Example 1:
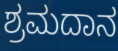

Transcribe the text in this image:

ಶ್ರಮದಾನ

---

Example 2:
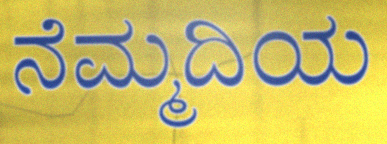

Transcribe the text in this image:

ನೆಮ್ಮದಿಯ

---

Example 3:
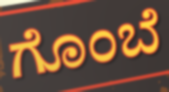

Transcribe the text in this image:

ಗೊಂಬೆ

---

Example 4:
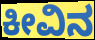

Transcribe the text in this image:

ಕೀವಿನ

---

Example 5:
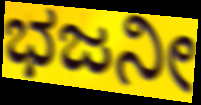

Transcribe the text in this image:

ಭಜನೀ